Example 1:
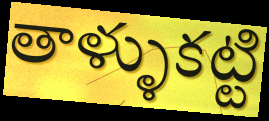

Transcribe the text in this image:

తాళ్ళుకట్టి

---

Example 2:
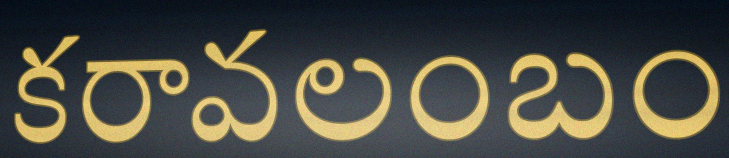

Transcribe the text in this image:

కరావలంబం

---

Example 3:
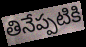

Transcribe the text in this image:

తినేప్పటికి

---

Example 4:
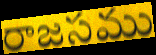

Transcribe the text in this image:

రాజసము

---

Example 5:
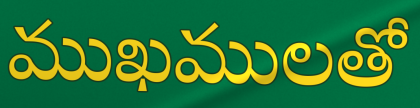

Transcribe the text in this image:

ముఖములతో